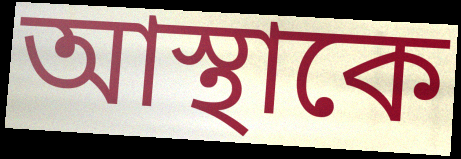
আস্থাকে